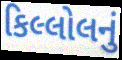
કિલ્લોલનું